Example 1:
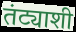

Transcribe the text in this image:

तंट्याशी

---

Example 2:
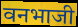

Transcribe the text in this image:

वनभाजी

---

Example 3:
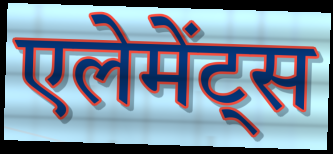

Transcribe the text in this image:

एलेमेंट्स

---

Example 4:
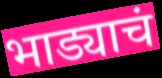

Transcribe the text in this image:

भाड्याचं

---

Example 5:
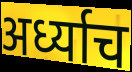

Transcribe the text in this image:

अर्ध्याच